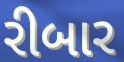
રીબાર